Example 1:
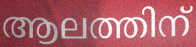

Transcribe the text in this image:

ആലത്തിന്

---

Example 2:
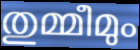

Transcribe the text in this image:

തുമ്മീമും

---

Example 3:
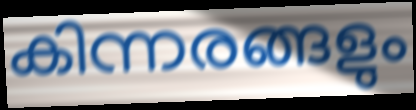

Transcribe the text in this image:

കിന്നരങ്ങളും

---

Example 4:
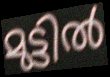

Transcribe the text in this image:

മുട്ടിൽ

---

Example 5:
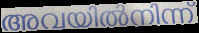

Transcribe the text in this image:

അവയിൽനിന്ന്